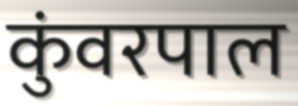
कुंवरपाल